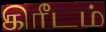
கிரீடம்